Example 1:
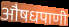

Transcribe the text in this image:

औषधपाणी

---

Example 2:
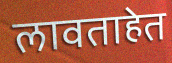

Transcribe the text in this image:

लावताहेत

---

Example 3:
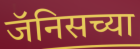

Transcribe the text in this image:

जॅनिसच्या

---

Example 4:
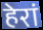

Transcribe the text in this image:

हेरां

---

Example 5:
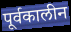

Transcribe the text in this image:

पूर्वकालीन